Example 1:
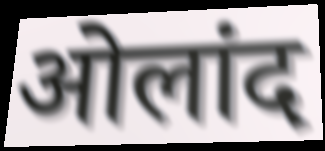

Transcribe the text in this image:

ओलांद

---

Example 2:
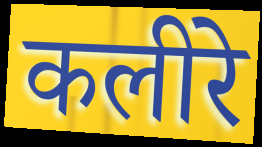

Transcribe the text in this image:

कलीरे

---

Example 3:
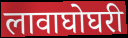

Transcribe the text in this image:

लावाघोघरी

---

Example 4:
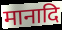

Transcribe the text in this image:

मानादि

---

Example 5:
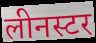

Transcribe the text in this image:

लीनस्टर